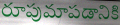
రూపుమాపడానికి